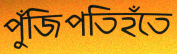
পুঁজিপতিহঁতে